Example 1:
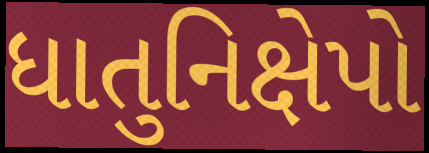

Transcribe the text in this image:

ધાતુનિક્ષેપો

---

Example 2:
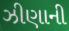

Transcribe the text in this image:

ઝીણાની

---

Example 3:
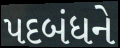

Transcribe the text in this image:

પદબંધને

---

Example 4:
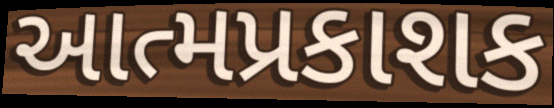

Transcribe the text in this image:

આત્મપ્રકાશક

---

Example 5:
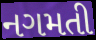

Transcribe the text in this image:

નગમતી